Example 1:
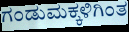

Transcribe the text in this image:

ಗಂಡುಮಕ್ಕಳಿಗಿಂತ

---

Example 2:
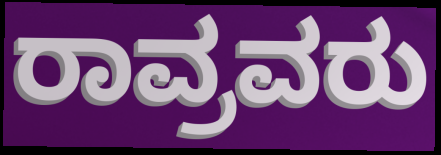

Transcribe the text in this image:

ರಾವ್ರವರು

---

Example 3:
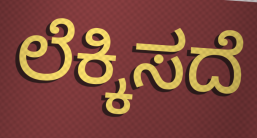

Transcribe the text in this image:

ಲೆಕ್ಕಿಸದೆ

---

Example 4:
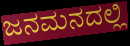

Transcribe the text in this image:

ಜನಮನದಲ್ಲಿ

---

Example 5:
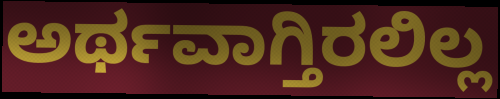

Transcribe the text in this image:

ಅರ್ಥವಾಗ್ತಿರಲಿಲ್ಲ